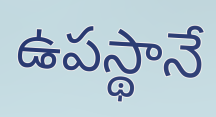
ఉపస్థానే